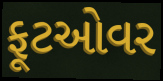
ફૂટઓવર